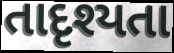
તાદૃશ્યતા